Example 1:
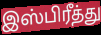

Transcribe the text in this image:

இஸ்பிரீத்து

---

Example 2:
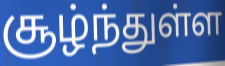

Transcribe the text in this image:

சூழ்ந்துள்ள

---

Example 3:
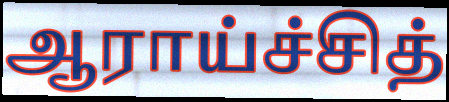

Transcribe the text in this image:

ஆராய்ச்சித்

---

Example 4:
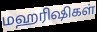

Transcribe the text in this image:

மஹரிஷிகள்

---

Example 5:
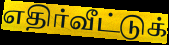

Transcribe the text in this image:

எதிர்வீட்டுக்